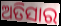
ଅତିସାର